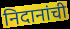
निदानांची